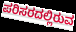
ಪರಿಸರದಲ್ಲಿರುವ